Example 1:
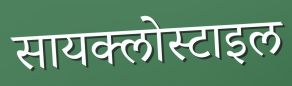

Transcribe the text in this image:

सायक्लोस्टाइल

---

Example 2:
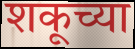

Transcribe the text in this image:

शकूच्या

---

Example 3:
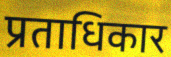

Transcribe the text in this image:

प्रताधिकार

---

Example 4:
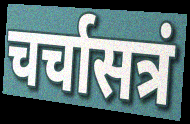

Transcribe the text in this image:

चर्चासत्रं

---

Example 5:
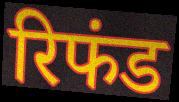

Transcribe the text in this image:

रिफंड